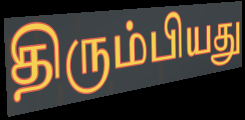
திரும்பியது